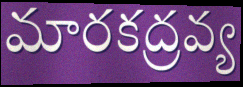
మారకద్రవ్య